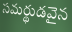
సమర్థుడవైన